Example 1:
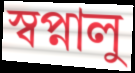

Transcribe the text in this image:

স্বপ্নালু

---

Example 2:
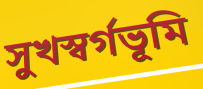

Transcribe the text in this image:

সুখস্বর্গভূমি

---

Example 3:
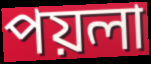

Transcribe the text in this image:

পয়লা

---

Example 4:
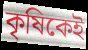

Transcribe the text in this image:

কৃষিকেই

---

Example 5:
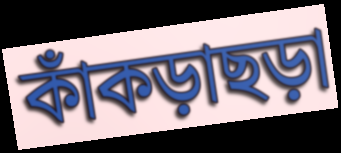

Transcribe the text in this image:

কাঁকড়াছড়া